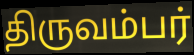
திருவம்பர்